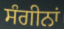
ਸੰਗੀਨਾਂ